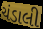
ચંડાલી